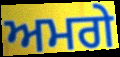
ਅਮਗੇ